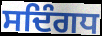
ਸਦਿੰਗਧ